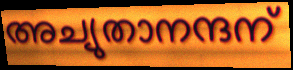
അച്യുതാനന്ദന്